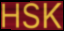
HSK